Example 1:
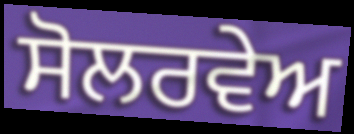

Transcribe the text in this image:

ਸੋਲਰਵੇਅ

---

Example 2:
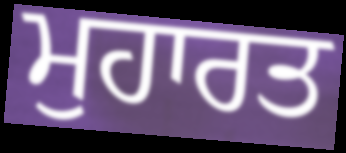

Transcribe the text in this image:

ਮੁਹਾਰਤ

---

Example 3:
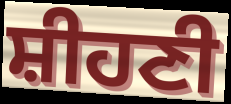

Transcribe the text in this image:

ਸ਼ੀਹਣੀ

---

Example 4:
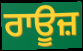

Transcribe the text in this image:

ਰਾਊਜ਼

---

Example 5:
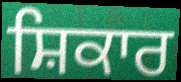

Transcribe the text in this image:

ਸ਼ਿਕਾਰ